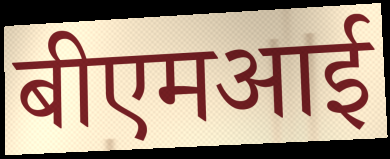
बीएमआई